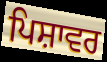
ਪਿਸ਼ਾਵਰ